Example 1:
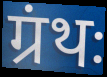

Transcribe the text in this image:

ग्रंथः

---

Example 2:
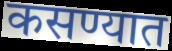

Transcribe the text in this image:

कसण्यात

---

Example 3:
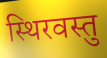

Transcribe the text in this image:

स्थिरवस्तु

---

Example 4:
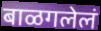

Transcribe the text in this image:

बाळगलेलं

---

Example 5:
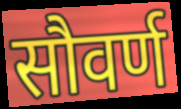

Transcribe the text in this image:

सौवर्ण